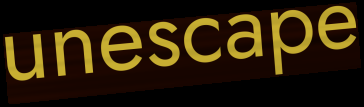
unescape